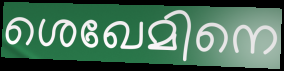
ശെഖേമിനെ